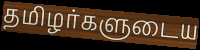
தமிழர்களுடைய